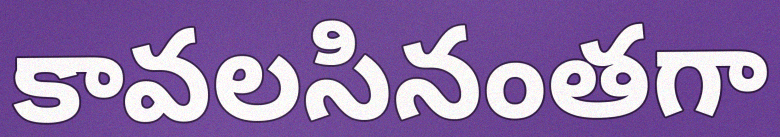
కావలసినంతగా